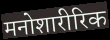
मनोशारीरिक